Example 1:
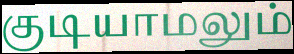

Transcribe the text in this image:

குடியாமலும்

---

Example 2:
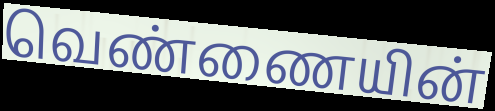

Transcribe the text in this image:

வெண்ணையின்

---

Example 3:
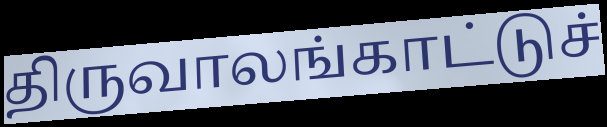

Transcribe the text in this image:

திருவாலங்காட்டுச்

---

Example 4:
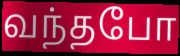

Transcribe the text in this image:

வந்தபோ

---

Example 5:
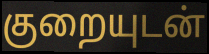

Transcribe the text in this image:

குறையுடன்